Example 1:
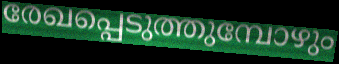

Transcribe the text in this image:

രേഖപ്പെടുത്തുമ്പോഴും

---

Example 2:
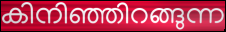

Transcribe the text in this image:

കിനിഞ്ഞിറങ്ങുന്ന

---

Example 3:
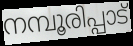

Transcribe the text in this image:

നമ്പൂരിപ്പാട്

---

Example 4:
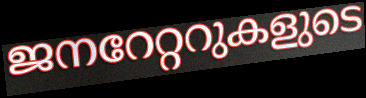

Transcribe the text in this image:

ജനറേറ്ററുകളുടെ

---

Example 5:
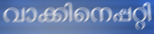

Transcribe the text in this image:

വാക്കിനെപ്പറ്റി